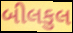
બીલકુલ